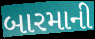
બારમાની